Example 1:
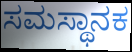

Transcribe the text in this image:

ಸಮಸ್ಥಾನಕ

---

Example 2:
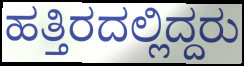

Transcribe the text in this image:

ಹತ್ತಿರದಲ್ಲಿದ್ದರು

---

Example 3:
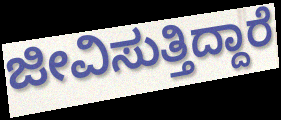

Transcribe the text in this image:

ಜೀವಿಸುತ್ತಿದ್ದಾರೆ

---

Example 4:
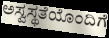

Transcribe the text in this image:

ಅಸ್ವಸ್ಥತೆಯೊಂದಿಗೆ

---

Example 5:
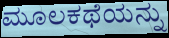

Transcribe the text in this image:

ಮೂಲಕಥೆಯನ್ನು